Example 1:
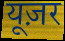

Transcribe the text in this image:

यूज़र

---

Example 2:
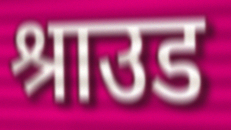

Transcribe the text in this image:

श्राउड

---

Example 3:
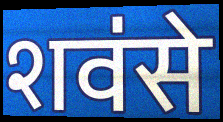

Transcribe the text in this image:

शव॑से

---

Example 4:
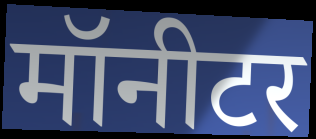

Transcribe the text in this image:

मॉनीटर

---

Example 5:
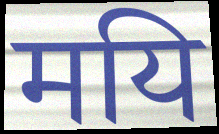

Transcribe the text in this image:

मयि